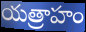
యత్రాహం